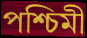
পশ্চিমী